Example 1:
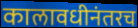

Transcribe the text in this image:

कालावधीनंतरच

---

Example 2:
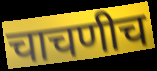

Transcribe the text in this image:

चाचणीच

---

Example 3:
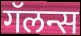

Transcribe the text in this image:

गॅलन्स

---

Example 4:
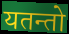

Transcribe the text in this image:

यतन्तो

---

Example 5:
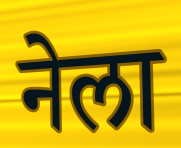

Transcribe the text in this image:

नेला